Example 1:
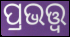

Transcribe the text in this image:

ପ୍ରଭତ୍ତ୍ଵ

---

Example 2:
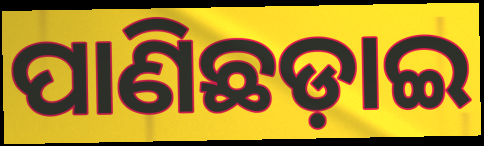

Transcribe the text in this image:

ପାଣିଛଡ଼ାଇ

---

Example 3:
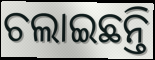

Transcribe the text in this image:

ଚଲାଇଛନ୍ତି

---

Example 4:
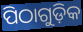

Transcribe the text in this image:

ପିଠାଗୁଡ଼ିକ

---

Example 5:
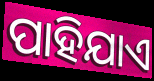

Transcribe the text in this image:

ପାହିଯାଏ